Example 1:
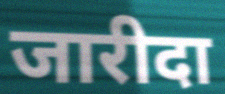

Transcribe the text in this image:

जारीदा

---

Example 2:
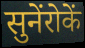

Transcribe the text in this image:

सुनेंरोकें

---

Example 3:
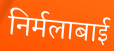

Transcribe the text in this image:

निर्मलाबाई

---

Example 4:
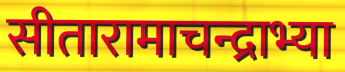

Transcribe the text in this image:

सीतारामाचन्द्राभ्या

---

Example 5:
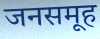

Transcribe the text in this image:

जनसमूह